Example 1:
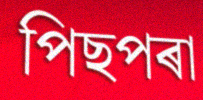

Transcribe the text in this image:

পিছপৰা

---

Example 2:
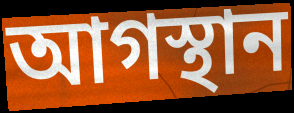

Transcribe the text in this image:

আগস্থান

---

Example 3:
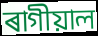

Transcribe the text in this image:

ৰাগীয়াল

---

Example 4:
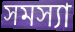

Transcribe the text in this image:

সমস্যা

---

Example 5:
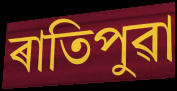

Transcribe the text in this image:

ৰাতিপুৱা